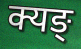
क्यङ्